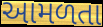
આમળતા